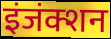
इंजंक्शन